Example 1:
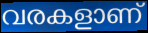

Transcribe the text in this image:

വരകളാണ്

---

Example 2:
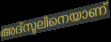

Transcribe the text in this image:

അദ്സുലിനെയാണ്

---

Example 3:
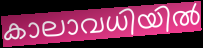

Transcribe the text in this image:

കാലാവധിയിൽ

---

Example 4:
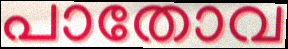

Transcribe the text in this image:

പാതോവ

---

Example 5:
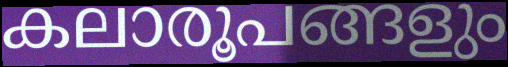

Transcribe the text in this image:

കലാരൂപങ്ങളും